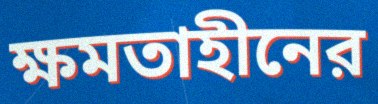
ক্ষমতাহীনের